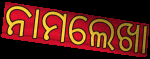
ନାମଲେଖା